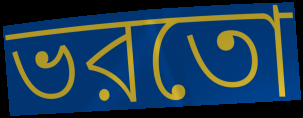
ভরতো